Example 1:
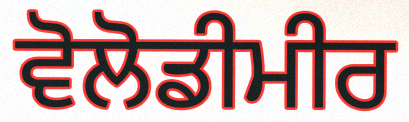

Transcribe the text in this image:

ਵੋਲੋਡੀਮੀਰ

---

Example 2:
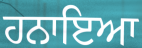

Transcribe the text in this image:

ਹਨਾਇਆ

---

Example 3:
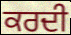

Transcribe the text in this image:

ਕਰਦੀ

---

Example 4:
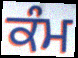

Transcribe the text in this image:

ਕੰਮ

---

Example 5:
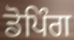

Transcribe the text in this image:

ਡੋਪਿੰਗ